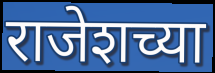
राजेशच्या